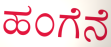
ಹಂಗೆನೆ